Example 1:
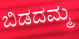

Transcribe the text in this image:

ಬಿಡದಮ್ಮ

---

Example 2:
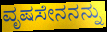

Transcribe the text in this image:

ವೃಷಸೇನನನ್ನು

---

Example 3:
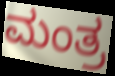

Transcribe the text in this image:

ಮಂತ್ರ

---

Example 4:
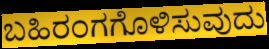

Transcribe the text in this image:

ಬಹಿರಂಗಗೊಳಿಸುವುದು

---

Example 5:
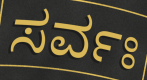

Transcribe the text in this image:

ಸರ್ವಃ